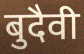
बुदैवी